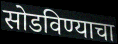
सोडविण्याचा